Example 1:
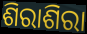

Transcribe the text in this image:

ଶିରାଶିରା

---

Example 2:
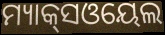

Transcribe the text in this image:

ମ୍ୟାକ୍‌ସଓୟେଲ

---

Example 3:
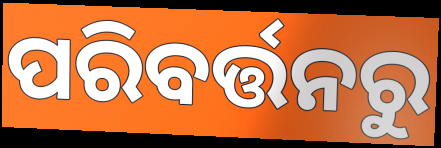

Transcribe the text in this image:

ପରିବର୍ତ୍ତନରୁ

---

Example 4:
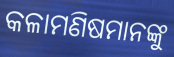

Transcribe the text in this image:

କଳାମଣିଷମାନଙ୍କୁ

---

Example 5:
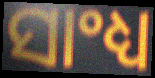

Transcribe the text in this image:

ସାଂଧ୍ୟ